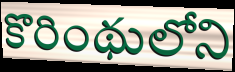
కొరింథులోని